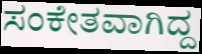
ಸಂಕೇತವಾಗಿದ್ದ